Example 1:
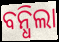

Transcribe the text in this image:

ବନ୍ଧିଲା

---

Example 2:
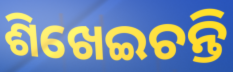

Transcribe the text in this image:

ଶିଖେଇଚନ୍ତି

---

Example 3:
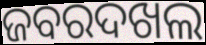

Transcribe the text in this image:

ଜବରଦଖଲ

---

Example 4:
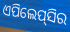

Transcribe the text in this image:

ଏପିଲେପ୍‌ସିର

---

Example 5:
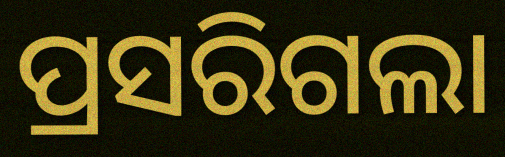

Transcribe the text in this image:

ପ୍ରସରିଗଲା